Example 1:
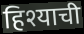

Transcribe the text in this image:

हिश्याची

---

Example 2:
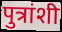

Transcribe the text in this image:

पुत्रांशी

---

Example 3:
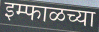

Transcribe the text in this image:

इम्फाळच्या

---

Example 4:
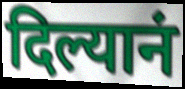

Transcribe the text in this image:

दिल्यानं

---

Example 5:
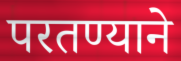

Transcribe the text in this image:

परतण्याने